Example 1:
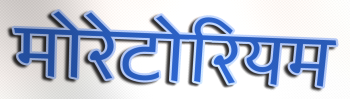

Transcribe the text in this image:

मोरेटोरियम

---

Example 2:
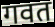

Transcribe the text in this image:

गवत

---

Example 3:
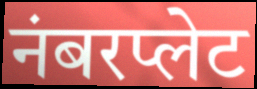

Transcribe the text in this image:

नंबरप्लेट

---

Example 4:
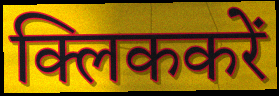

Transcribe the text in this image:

क्लिककरें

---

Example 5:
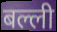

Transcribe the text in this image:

बल्ली